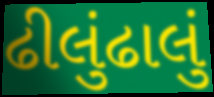
ઢીલુંઢાલું